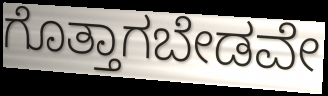
ಗೊತ್ತಾಗಬೇಡವೇ